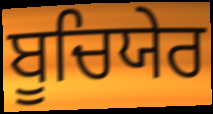
ਬੂਚਿਯੇਰ